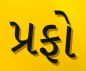
પ્રફો